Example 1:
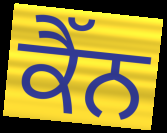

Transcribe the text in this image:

ਕੈੱਨ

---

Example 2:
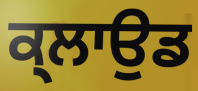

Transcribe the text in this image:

ਕ੍ਲਾਉਡ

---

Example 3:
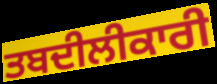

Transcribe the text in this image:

ਤਬਦੀਲੀਕਾਰੀ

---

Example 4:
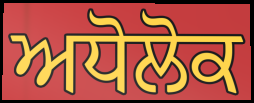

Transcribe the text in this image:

ਅਧੋਲੋਕ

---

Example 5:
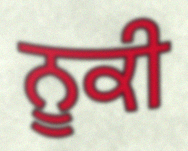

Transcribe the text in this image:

ਨੂਕੀ